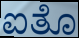
ಐತೊ